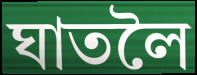
ঘাতলৈ